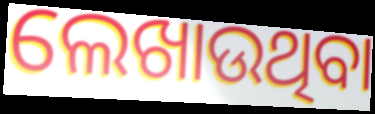
ଲେଖାଉଥିବା